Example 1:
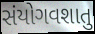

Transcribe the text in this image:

સંયોગવશાતુ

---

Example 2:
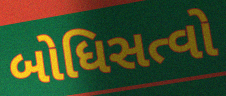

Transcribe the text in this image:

બોધિસત્વો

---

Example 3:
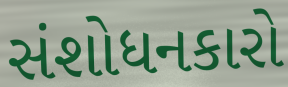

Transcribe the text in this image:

સંશોધનકારો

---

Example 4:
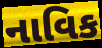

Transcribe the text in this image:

નાવિક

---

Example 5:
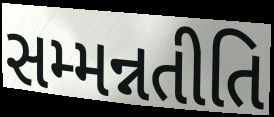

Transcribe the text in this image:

સમ્મન્નતીતિ